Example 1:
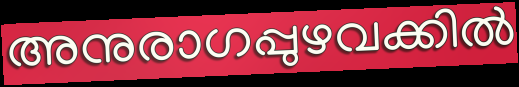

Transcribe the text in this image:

അനുരാഗപ്പുഴവക്കിൽ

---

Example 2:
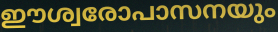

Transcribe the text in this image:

ഈശ്വരോപാസനയും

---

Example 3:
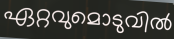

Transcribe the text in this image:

ഏറ്റവുമൊടുവിൽ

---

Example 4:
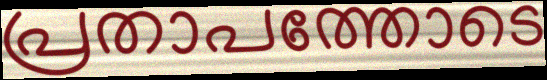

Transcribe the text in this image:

പ്രതാപത്തോടെ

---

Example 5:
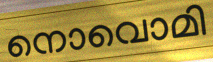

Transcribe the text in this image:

നൊവൊമി